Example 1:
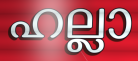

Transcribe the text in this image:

ഹല്ലാ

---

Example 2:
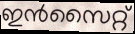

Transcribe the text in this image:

ഇൻസൈറ്റ്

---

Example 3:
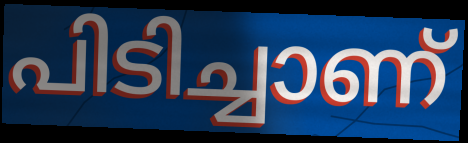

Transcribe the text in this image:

പിടിച്ചാണ്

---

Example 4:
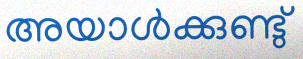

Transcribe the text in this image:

അയാൾക്കുണ്ടു്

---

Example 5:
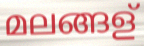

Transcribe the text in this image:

മലങ്ങള്